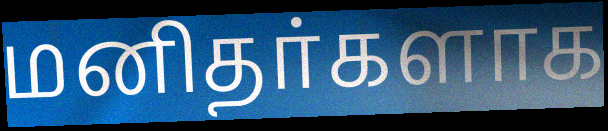
மனிதர்களாக